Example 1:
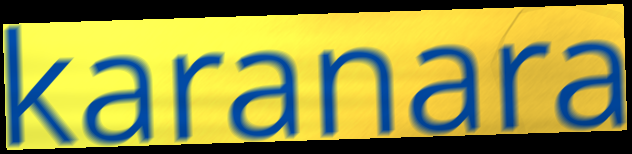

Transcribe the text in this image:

karanara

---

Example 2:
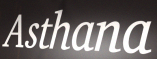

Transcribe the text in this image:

Asthana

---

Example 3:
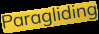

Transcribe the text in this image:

Paragliding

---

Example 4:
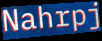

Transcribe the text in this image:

Nahrpj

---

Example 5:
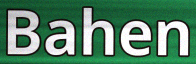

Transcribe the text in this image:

Bahen